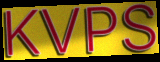
KVPS